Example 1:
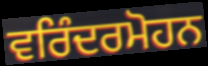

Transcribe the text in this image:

ਵਰਿੰਦਰਮੋਹਨ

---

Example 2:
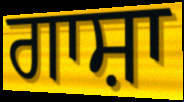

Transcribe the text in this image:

ਗਾਸ਼ਾ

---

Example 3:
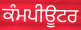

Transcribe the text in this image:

ਕੰਮਪੀਊਟਰ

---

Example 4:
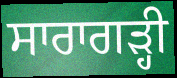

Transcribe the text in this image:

ਸਾਰਾਗੜ੍ਹੀ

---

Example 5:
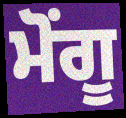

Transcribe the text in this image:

ਮੋਂਗੂ